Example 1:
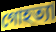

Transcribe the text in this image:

গোহত্যা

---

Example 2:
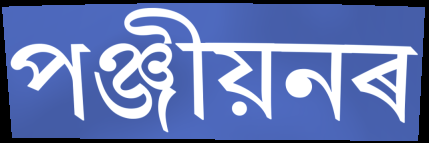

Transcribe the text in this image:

পঞ্জীয়নৰ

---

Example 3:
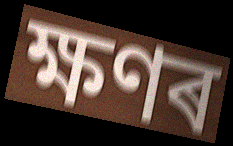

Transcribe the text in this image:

ক্ষণৰ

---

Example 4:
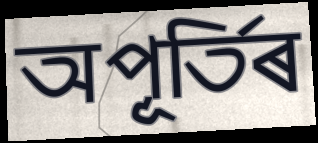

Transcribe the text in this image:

অপূৰ্তিৰ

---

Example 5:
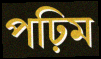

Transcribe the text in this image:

পঢ়িম